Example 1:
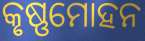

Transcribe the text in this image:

କୃଷ୍ଣମୋହନ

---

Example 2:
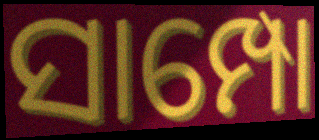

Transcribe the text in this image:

ସାମ୍ପୋ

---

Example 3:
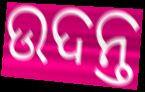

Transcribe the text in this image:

ଉଦନ୍ତ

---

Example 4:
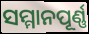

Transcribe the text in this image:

ସମ୍ମାନପୂର୍ଣ୍ଣ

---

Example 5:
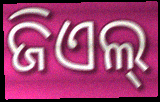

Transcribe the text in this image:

ଜିଏଲ୍